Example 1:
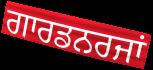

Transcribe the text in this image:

ਗਾਰਡਨਰਜਾਂ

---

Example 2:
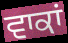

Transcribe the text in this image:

ਵਾਕਾਂ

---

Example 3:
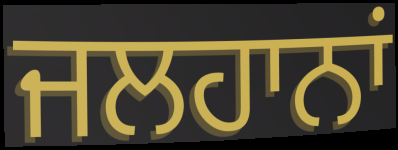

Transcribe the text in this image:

ਜਲਹਾਨਾਂ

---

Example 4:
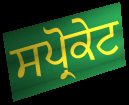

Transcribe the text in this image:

ਸਪ੍ਰੋਕੇਟ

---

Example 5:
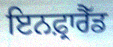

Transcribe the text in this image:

ਇਨਫ਼੍ਰਾਰੈੱਡ